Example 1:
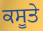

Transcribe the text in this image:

ਕਸੂਤੇ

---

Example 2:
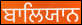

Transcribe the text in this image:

ਬਾਲਿਯਾਨ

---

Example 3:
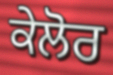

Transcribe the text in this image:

ਕੇਲੋਰ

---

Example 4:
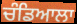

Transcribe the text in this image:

ਚੰਡਿਆਲਾ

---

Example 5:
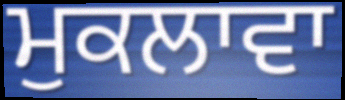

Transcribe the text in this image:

ਮੁਕਲਾਵਾ